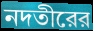
নদতীরের